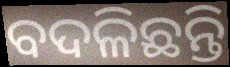
ବଦଳିଛନ୍ତି